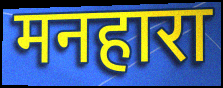
मनहारा